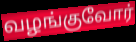
வழங்குவோர்